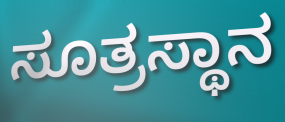
ಸೂತ್ರಸ್ಥಾನ